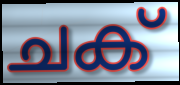
ചക്